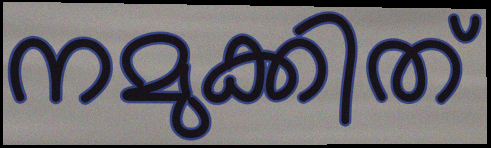
നമുക്കിത്